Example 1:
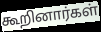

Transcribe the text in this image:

கூறினார்கள்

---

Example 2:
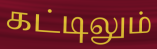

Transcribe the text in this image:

கட்டிலும்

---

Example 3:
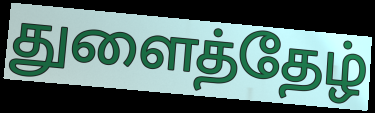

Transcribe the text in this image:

துளைத்தேழ்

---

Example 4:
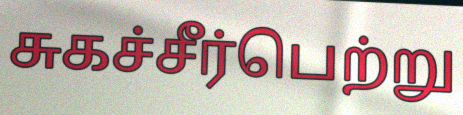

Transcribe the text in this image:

சுகச்சீர்பெற்று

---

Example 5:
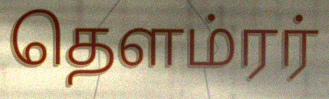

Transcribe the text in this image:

தௌம்ரர்